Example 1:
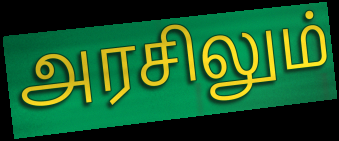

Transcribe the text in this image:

அரசிலும்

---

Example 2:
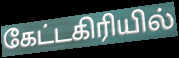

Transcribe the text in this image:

கேட்டகிரியில்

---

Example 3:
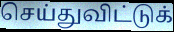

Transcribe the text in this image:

செய்துவிட்டுக்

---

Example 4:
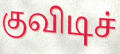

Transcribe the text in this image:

குவிடிச்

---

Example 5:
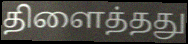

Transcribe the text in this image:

திளைத்தது